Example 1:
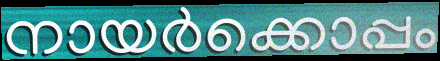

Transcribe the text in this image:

നായർക്കൊപ്പം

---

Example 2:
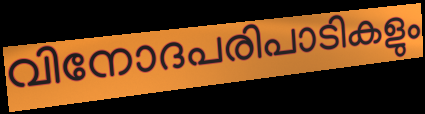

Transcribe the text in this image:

വിനോദപരിപാടികളും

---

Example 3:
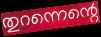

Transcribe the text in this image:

തുറന്നെന്റെ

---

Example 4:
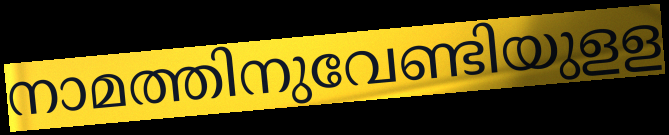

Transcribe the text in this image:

നാമത്തിനുവേണ്ടിയുളള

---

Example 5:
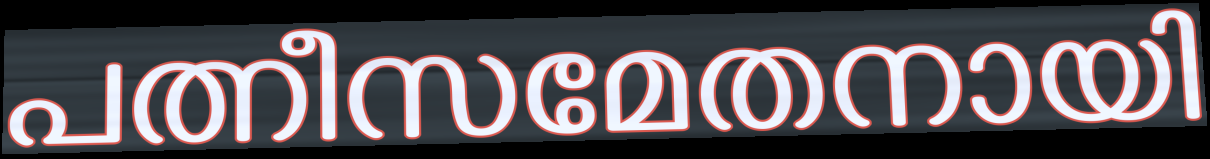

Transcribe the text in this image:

പത്നീസമേതനായി